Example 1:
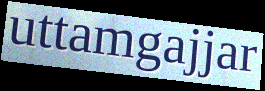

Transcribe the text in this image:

uttamgajjar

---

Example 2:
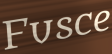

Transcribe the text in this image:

Fusce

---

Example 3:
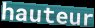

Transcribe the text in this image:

hauteur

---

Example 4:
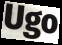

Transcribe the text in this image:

Ugo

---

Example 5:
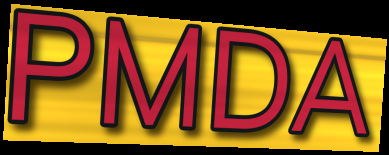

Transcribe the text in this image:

PMDA